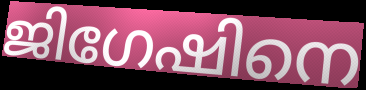
ജിഗേഷിനെ